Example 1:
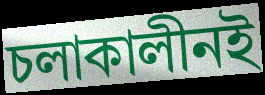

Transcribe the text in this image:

চলাকালীনই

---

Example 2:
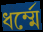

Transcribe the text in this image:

ধর্ম্মে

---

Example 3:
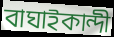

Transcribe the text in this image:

বাঘাইকান্দী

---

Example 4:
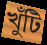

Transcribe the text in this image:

খুঁটি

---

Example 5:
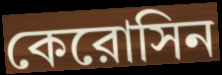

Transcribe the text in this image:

কেরোসিন